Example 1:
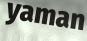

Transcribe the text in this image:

yaman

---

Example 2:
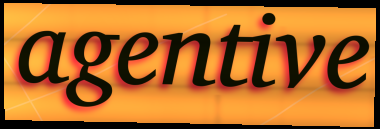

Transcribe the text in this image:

agentive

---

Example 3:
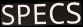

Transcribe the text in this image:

SPECS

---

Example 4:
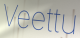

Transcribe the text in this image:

Veettu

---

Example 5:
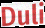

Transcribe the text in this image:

Duli